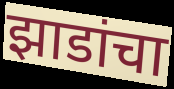
झाडांचा